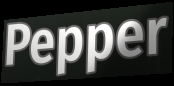
Pepper